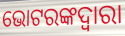
ଭୋଟରଙ୍କଦ୍ଵାରା